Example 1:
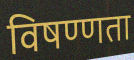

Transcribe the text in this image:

विषण्णता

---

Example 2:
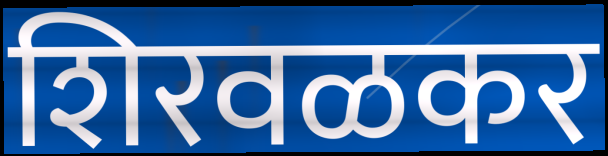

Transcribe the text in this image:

शिरवळकर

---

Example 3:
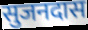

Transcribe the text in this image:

सुजनदास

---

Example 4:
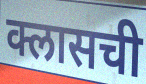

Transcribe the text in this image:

क्लासची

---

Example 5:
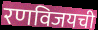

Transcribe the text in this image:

रणविजयची